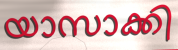
യാസാക്കി